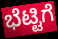
ಭೆಟ್ಟಿಗೆ